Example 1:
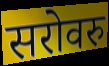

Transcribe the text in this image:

सरोवरु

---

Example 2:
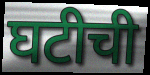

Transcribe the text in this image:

घटीची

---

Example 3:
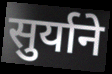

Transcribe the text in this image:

सुर्याने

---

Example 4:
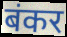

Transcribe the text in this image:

बंकर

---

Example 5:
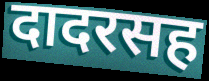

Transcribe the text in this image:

दादरसह